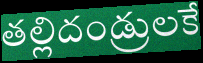
తల్లిదండ్రులకే